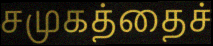
சமுகத்தைச்